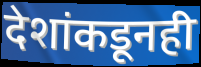
देशांकडूनही